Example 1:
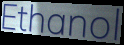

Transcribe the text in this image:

Ethanol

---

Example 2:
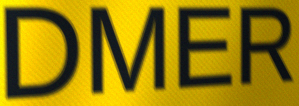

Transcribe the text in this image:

DMER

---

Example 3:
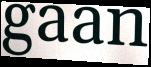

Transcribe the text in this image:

gaan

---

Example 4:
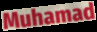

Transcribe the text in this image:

Muhamad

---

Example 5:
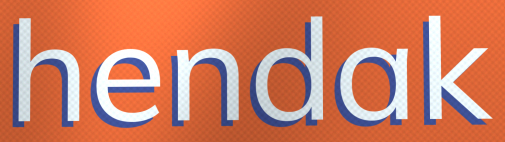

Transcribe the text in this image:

hendak